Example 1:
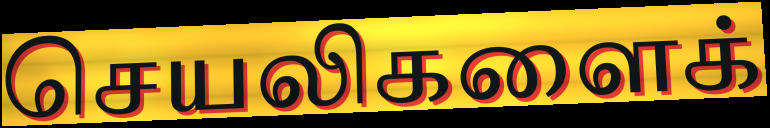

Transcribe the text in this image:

செயலிகளைக்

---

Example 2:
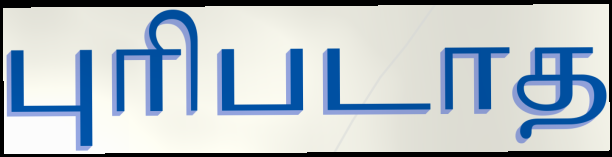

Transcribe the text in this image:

புரிபடாத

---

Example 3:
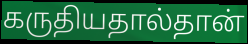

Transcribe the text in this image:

கருதியதால்தான்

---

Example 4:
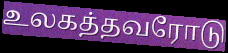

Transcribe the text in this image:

உலகத்தவரோடு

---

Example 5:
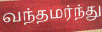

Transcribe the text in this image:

வந்தமர்ந்து